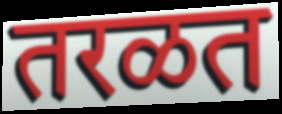
तरळत